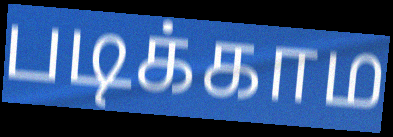
படிக்காம